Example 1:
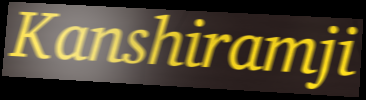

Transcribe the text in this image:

Kanshiramji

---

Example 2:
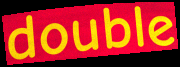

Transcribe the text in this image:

double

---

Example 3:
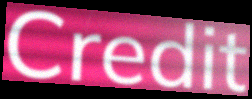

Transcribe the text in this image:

Credit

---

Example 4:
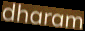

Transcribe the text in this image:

dharam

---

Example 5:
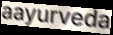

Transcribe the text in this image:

aayurveda